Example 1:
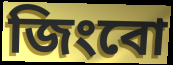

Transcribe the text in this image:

জিংবো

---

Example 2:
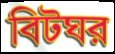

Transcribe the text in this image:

বিটঘর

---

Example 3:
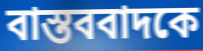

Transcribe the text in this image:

বাস্তববাদকে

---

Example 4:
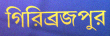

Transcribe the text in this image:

গিরিব্রজপুর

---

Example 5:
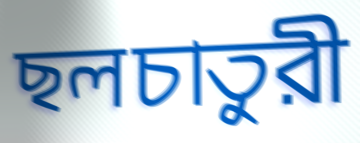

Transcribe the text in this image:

ছলচাতুরী